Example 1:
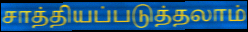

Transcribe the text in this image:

சாத்தியப்படுத்தலாம்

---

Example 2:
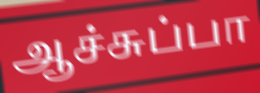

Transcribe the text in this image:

ஆச்சுப்பா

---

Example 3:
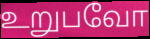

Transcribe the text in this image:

உறுபவோ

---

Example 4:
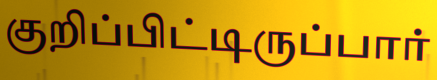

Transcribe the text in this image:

குறிப்பிட்டிருப்பார்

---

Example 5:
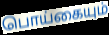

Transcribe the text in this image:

பொய்கையும்